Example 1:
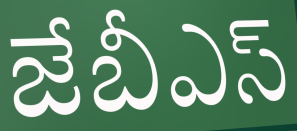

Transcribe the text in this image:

జేబీఎస్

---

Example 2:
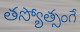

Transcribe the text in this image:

తస్యోత్సంగే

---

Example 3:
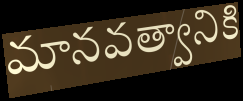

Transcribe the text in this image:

మానవత్వానికి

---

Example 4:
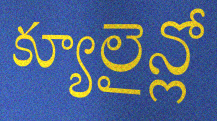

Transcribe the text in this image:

క్యూలైన్లో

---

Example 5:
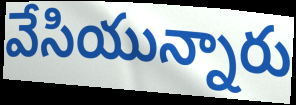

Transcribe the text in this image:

వేసియున్నారు